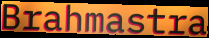
Brahmastra